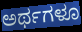
ಅರ್ಥಗಳೂ